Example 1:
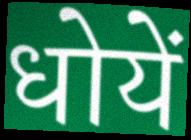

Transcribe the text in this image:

धोयें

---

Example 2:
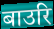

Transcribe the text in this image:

बाउरि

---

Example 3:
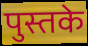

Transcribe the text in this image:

पुस्‍तके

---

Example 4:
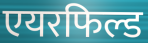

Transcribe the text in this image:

एयरफिल्ड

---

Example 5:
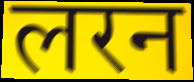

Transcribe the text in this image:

लरन